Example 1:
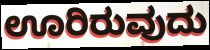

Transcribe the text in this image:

ಊರಿರುವುದು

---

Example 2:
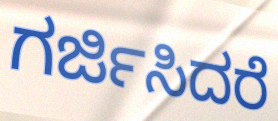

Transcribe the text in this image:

ಗರ್ಜಿಸಿದರೆ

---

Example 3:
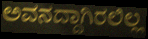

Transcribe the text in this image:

ಅವನದ್ದಾಗಿರಲಿಲ್ಲ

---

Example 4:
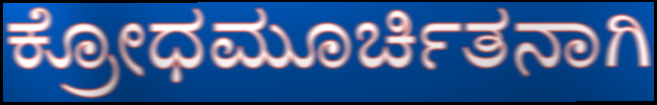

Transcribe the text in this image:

ಕ್ರೋಧಮೂರ್ಚಿತನಾಗಿ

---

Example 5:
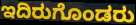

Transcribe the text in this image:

ಇದಿರುಗೊಂಡರು